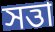
সত্তা